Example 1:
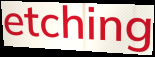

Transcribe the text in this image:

etching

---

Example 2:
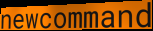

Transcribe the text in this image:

newcommand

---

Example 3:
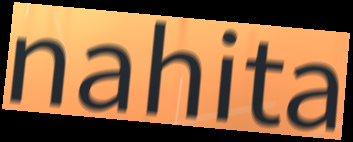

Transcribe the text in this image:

nahita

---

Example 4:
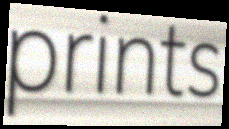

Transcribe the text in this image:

prints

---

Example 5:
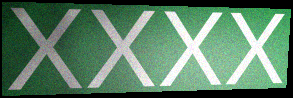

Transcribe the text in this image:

XXXX